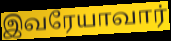
இவரேயாவார்